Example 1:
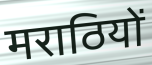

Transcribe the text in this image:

मराठियों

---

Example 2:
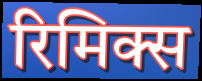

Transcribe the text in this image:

रिमिक्स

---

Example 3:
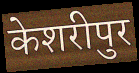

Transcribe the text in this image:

केशरीपुर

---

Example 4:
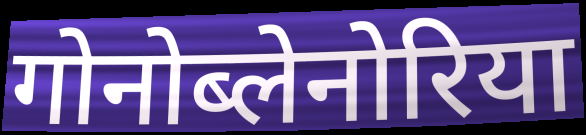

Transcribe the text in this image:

गोनोब्लेनोरिया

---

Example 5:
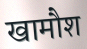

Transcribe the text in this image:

खामौश